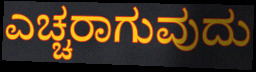
ಎಚ್ಚರಾಗುವುದು